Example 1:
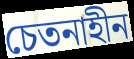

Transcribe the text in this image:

চেতনাহীন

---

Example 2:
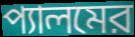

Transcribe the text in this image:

প্যালমের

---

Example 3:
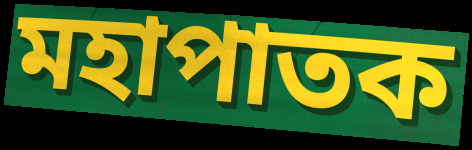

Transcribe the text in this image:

মহাপাতক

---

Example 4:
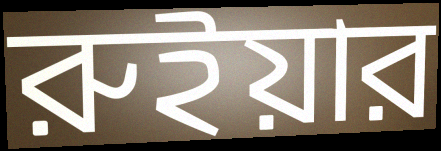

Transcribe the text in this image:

রুইয়ার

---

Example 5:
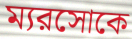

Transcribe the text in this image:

ম্যরসোকে